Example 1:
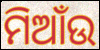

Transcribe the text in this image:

ମିଆଁଉ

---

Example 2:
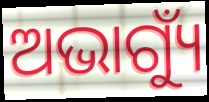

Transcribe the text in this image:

ଅଭାଗ୍ୟୁଁ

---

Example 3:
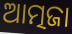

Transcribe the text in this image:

ଆତ୍ମଜା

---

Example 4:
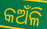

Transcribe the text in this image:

କଅଁଳି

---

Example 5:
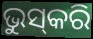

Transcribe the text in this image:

ଭୁସ୍‌କରି